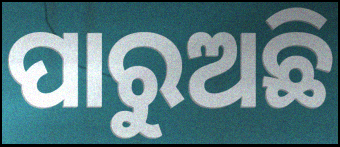
ପାରୁଅଛି